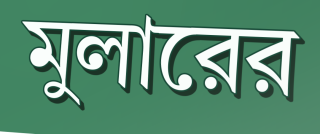
মুলারের